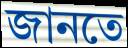
জানতে